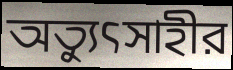
অত্যুৎসাহীর